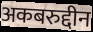
अकबरुद्दीन